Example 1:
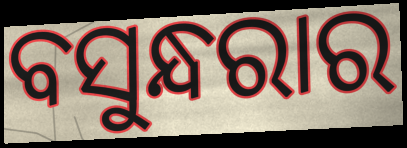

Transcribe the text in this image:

ବସୁନ୍ଧରାର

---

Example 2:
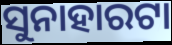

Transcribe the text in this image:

ସୁନାହାରଟା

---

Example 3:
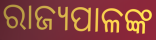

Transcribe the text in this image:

ରାଜ୍ୟପାଳଙ୍କ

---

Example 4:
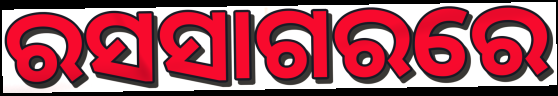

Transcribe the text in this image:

ରସସାଗରରେ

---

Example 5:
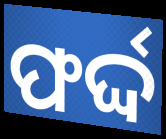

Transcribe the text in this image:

ଫର୍ଦ୍ଦ